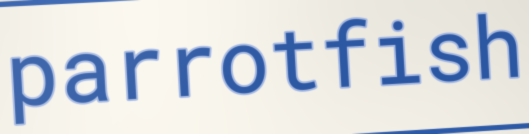
parrotfish